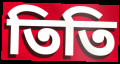
তিতি